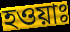
হওয়াঃ